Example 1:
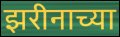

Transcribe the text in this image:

झरीनाच्या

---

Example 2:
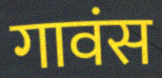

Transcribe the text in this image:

गावंस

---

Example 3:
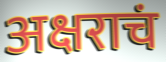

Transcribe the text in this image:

अक्षराचं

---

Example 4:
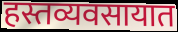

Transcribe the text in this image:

हस्तव्यवसायात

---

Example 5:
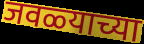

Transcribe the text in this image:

जवळ्याच्या